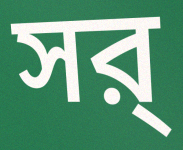
সর্